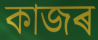
কাজৰ